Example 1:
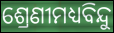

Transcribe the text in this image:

ଶ୍ରେଣୀମଧ୍ୟବିନ୍ଦୁ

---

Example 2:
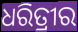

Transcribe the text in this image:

ଧରିତ୍ରୀର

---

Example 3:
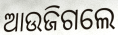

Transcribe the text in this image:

ଆଉଜିଗଲେ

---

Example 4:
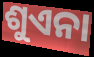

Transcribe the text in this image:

ଶୁଏନା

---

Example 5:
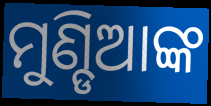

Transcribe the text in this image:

ମୁଣ୍ଡିଆଙ୍କ